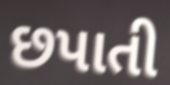
છપાતી